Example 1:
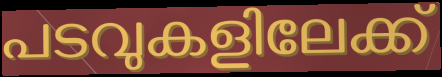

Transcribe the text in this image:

പടവുകളിലേക്ക്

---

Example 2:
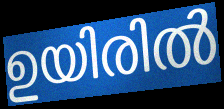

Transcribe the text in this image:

ഉയിരിൽ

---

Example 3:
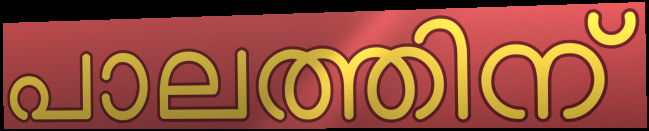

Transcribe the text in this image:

പാലത്തിന്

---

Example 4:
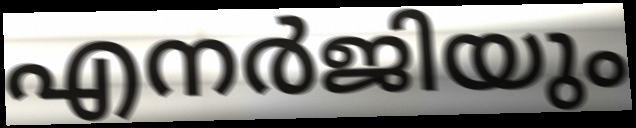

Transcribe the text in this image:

എനർജിയും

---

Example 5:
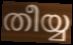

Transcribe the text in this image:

തീയ്യ